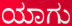
ಯಾಗು